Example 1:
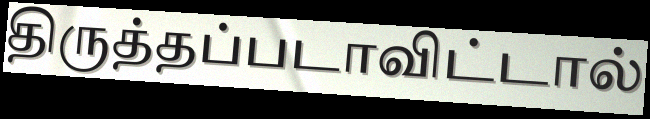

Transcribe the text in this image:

திருத்தப்படாவிட்டால்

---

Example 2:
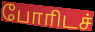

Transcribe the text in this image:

போரிடச்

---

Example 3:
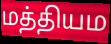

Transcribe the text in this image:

மத்தியம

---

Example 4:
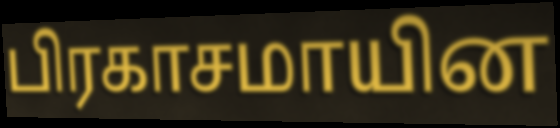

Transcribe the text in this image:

பிரகாசமாயின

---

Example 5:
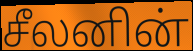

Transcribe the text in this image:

சீலனின்